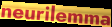
neurilemma